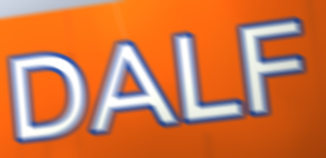
DALF